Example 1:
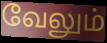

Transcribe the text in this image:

வேலும்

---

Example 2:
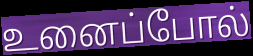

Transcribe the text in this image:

உனைப்போல்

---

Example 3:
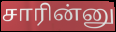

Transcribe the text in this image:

சாரின்னு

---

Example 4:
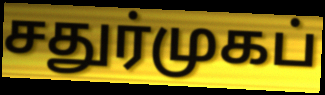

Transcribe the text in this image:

சதுர்முகப்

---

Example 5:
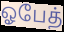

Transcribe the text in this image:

ஓபேத்